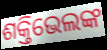
ଶକ୍ତିଭେଲଙ୍କ